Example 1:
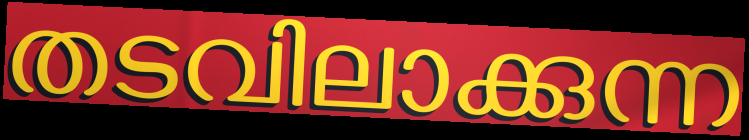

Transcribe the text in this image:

തടവിലാക്കുന്ന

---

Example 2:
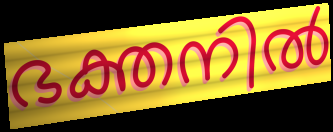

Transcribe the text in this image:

ഭക്തനിൽ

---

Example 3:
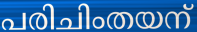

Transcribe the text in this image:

പരിചിംതയന്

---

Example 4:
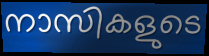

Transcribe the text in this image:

നാസികളുടെ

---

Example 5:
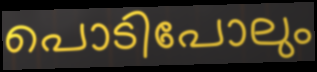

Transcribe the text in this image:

പൊടിപോലും